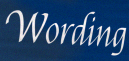
Wording